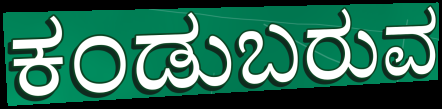
ಕಂಡುಬರುವ